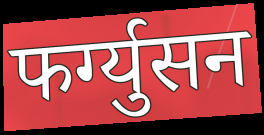
फर्ग्युसन